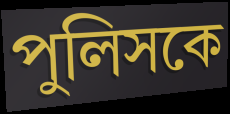
পুলিসকে